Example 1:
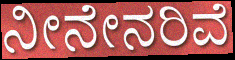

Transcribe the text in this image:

ನೀನೇನರಿವೆ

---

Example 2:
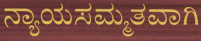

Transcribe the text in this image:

ನ್ಯಾಯಸಮ್ಮತವಾಗಿ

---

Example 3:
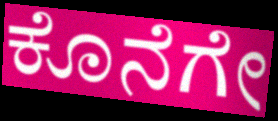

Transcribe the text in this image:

ಕೊನೆಗೇ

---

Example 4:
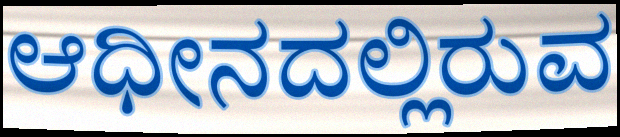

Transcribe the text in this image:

ಆಧೀನದಲ್ಲಿರುವ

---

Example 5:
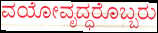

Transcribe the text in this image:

ವಯೋವೃದ್ಧರೊಬ್ಬರು